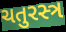
ચતુરસ્ત્ર